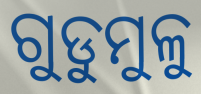
ଗୁଡୁମୁଳୁ